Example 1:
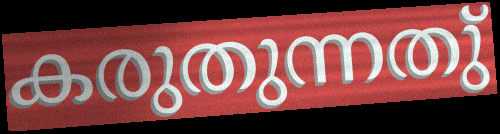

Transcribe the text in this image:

കരുതുന്നതു്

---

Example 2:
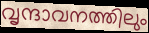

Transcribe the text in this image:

വൃന്ദാവനത്തിലും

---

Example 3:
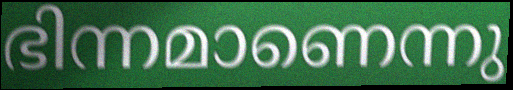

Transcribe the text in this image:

ഭിന്നമാണെന്നു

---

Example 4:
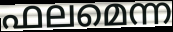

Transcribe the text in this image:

ഫലമെന്ന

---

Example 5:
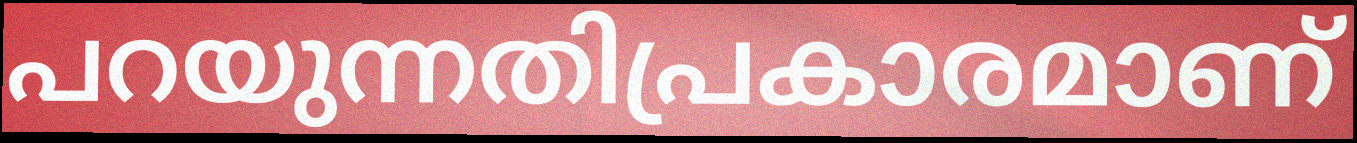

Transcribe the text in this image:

പറയുന്നതിപ്രകാരമാണ്